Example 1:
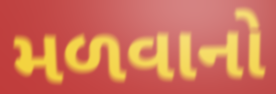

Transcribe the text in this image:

મળવાનો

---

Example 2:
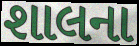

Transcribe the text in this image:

શાલના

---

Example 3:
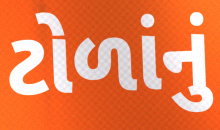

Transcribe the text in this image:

ટોળાંનું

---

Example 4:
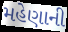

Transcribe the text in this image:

મહેણાની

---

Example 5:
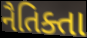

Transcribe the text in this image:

નૈતિક્તા